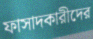
ফাসাদকারীদের